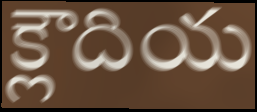
క్లౌదియ